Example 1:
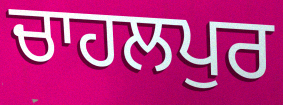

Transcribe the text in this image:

ਚਾਹਲਪੁਰ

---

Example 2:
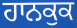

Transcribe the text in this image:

ਹਾਨਕੁਕ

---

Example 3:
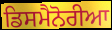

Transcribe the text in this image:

ਡਿਸਮੈਨੋਰੀਆ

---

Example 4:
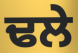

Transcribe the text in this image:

ਢਲੇ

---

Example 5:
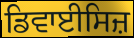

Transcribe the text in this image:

ਡਿਵਾਈਸਿਜ਼